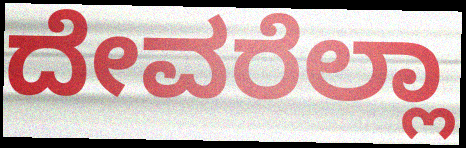
ದೇವರೆಲ್ಲಾ